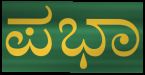
ಪಭಾ